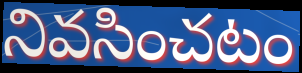
నివసించటం